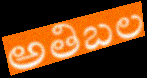
అతిబల